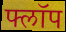
फ्लॉप